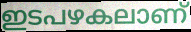
ഇടപഴകലാണ്